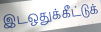
இடஒதுக்கீட்டுக்